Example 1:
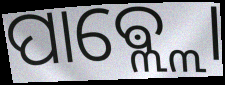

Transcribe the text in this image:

ପାଵ୍ଲ୍ଲୋ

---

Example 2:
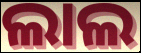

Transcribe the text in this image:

ଲାଲ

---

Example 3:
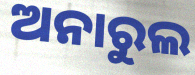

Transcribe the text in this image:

ଅନାରୁଲ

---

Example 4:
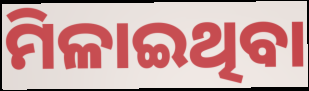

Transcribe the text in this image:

ମିଳାଇଥିବା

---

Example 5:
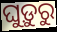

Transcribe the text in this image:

ଘୁଡ଼ୁରୁ